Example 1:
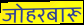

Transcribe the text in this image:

जोहरबारू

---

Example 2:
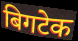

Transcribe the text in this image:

बिगटेक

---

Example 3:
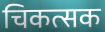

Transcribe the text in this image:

चिकत्सक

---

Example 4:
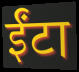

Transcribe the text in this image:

ईंटा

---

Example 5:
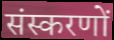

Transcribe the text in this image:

संस्करणों